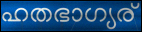
ഹതഭാഗ്യര്